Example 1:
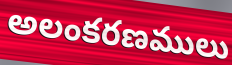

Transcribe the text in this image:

అలంకరణములు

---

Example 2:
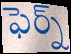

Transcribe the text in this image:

ఫెర్న్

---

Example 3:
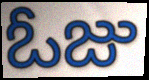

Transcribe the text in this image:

ఓజు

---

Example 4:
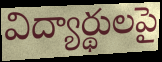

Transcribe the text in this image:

విద్యార్థులపై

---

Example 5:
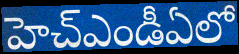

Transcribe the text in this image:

హెచ్ఎండీఏలో